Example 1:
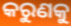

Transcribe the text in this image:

କରୁଣକୁ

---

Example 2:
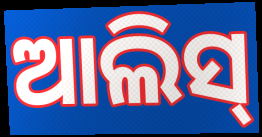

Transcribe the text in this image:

ଆଲିସ୍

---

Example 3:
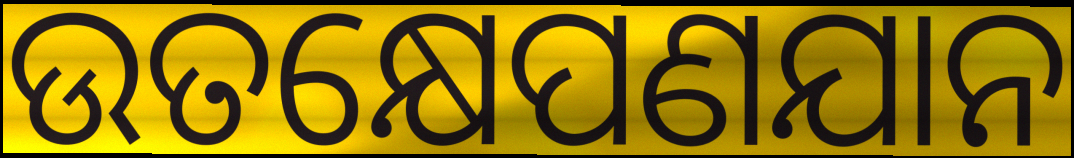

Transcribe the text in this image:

ଉତକ୍ଷେପଣଯାନ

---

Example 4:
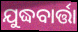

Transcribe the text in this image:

ଯୁଦ୍ଧବାର୍ତ୍ତା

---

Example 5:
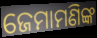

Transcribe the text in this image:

ଜେମାମଣିଙ୍କ